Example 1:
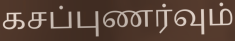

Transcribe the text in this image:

கசப்புணர்வும்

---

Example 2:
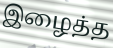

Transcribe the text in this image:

இழைத்த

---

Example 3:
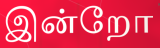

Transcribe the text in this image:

இன்றோ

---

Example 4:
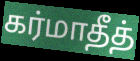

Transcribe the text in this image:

கர்மாதீத்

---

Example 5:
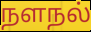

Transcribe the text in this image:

நளநல்